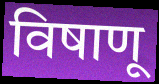
विषाणू